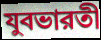
যুবভারতী